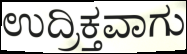
ಉದ್ರಿಕ್ತವಾಗು